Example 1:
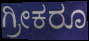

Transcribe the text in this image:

ಗ್ರೀಕರೂ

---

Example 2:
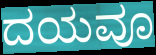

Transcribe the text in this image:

ದಯವೂ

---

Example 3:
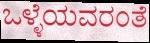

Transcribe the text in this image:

ಒಳ್ಳೆಯವರಂತೆ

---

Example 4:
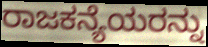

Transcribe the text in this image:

ರಾಜಕನ್ಯೆಯರನ್ನು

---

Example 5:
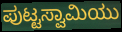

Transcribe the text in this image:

ಪುಟ್ಟಸ್ವಾಮಿಯು